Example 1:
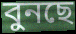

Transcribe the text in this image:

বুনছে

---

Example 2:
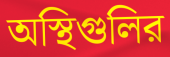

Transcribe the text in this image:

অস্থিগুলির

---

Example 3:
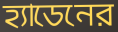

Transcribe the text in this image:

হ্যাডেনের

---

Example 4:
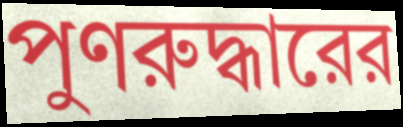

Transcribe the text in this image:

পুণরুদ্ধারের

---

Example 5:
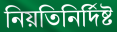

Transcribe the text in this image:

নিয়তিনির্দিষ্ট